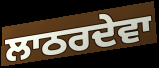
ਲਾਠਰਦੇਵਾ